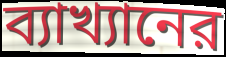
ব্যাখ্যানের